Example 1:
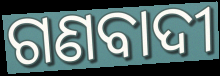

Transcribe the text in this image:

ଗଣବାଦୀ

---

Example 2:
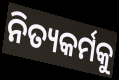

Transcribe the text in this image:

ନିତ୍ୟକର୍ମକୁ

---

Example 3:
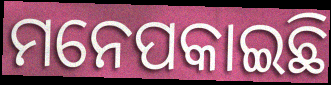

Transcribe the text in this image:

ମନେପକାଇଛି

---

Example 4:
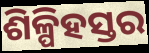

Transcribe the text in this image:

ଶିଳ୍ପିହସ୍ତର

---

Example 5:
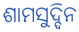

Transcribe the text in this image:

ଶାମସୁଦ୍ଦିନ